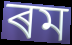
ৰম